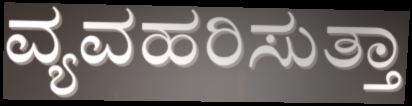
ವ್ಯವಹರಿಸುತ್ತಾ